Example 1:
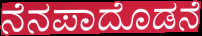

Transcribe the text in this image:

ನೆನಪಾದೊಡನೆ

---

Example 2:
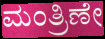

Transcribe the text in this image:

ಮಂತ್ರಿಣೇ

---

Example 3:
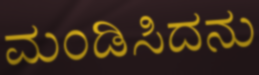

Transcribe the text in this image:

ಮಂಡಿಸಿದನು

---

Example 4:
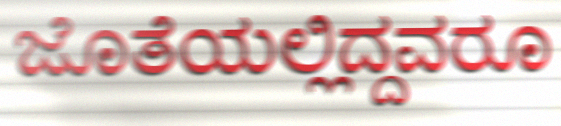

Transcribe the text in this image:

ಜೊತೆಯಲ್ಲಿದ್ದವರೂ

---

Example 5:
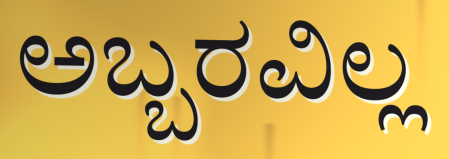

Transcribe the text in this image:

ಅಬ್ಬರವಿಲ್ಲ